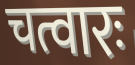
चत्वारः